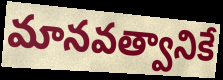
మానవత్వానికే